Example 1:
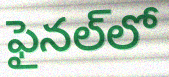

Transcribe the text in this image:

ఫైనల్‌లో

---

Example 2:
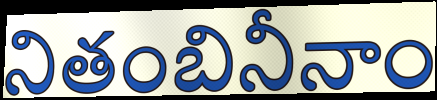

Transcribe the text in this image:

నితంబినీనాం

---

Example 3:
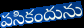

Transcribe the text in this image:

పసికందును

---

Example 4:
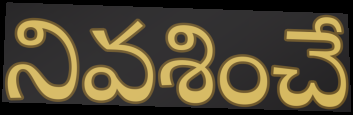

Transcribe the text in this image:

నివశించే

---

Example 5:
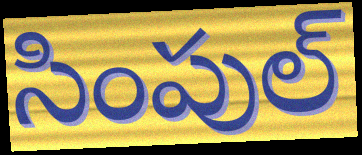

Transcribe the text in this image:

సింపుల్